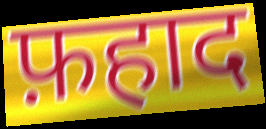
फ़हाद